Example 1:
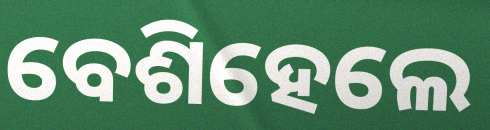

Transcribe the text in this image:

ବେଶିହେଲେ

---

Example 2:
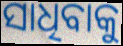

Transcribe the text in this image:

ସାଧିବାକୁ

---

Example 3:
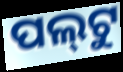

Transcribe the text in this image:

ପଲ୍‍ଟୁ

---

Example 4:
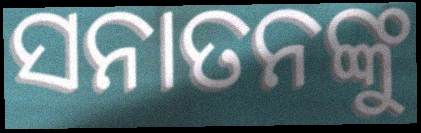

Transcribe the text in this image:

ସନାତନଙ୍କୁ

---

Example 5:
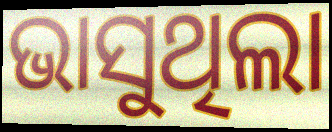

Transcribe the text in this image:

ଭାସୁଥିଲା